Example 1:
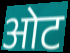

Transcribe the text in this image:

ओट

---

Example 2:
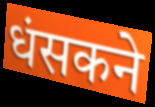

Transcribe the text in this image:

धंसकने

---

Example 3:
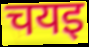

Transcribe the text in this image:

चयइ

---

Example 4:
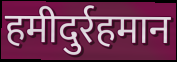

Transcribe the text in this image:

हमीदुर्रहमान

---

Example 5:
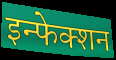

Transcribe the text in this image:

इन्फेक्शन